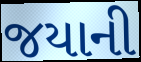
જયાની